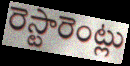
రెస్టారెంట్లు